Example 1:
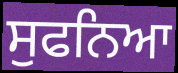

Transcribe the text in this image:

ਸੁਫਨਿਆ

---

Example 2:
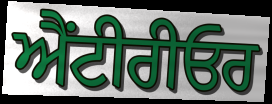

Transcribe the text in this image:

ਐਂਟੀਰੀਓਰ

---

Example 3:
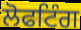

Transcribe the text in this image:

ਲੋਫਟਿੰਗ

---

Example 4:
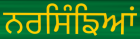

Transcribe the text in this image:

ਨਰਸਿੰਙਿਆਂ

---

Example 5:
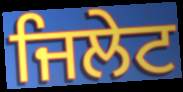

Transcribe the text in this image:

ਜਿਲੇਟ